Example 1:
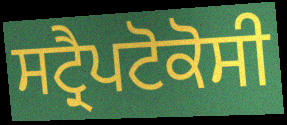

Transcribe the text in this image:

ਸਟ੍ਰੈਪਟੋਕੋਸੀ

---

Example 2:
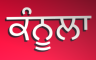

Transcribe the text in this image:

ਕੰਨੂਲਾ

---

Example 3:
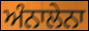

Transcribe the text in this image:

ਅੰਨਾਲੇਨਾ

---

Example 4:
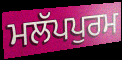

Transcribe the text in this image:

ਮਲੱਪਪੁਰਮ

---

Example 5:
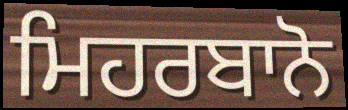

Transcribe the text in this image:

ਮਿਹਰਬਾਨੋ